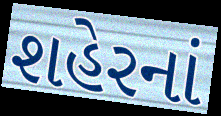
શહેરનાં